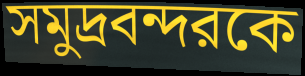
সমুদ্রবন্দরকে